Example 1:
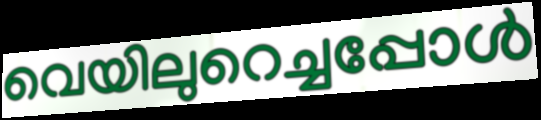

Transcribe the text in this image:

വെയിലുറെച്ചപ്പോൾ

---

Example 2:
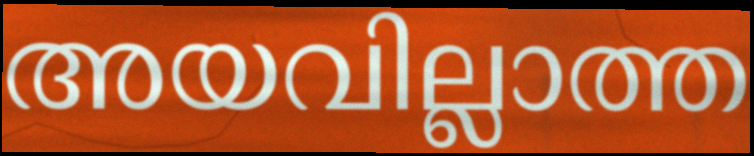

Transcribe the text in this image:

അയവില്ലാത്ത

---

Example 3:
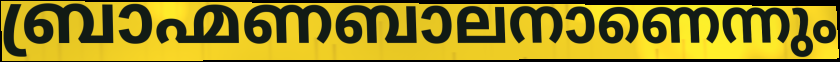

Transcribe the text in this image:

ബ്രാഹ്മണബാലനാണെന്നും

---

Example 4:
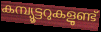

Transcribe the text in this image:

കമ്പ്യൂട്ടറുകളുണ്ട്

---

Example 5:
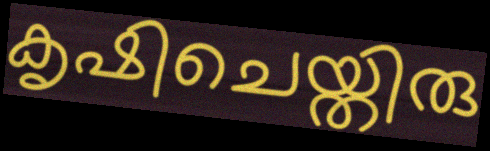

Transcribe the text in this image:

കൃഷിചെയ്തിരു